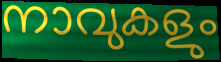
നാവുകളും